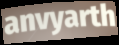
anvyarth